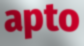
apto